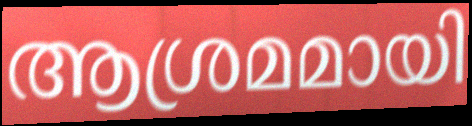
ആശ്രമമായി